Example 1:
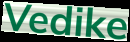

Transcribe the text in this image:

Vedike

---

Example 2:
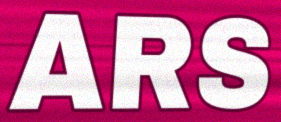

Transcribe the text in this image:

ARS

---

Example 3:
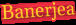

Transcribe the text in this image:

Banerjea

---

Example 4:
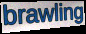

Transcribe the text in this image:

brawling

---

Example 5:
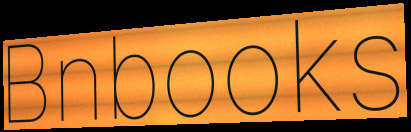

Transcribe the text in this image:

Bnbooks